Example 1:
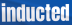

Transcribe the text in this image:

inducted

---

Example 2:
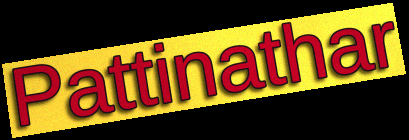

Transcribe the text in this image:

Pattinathar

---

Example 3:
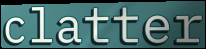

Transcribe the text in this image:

clatter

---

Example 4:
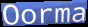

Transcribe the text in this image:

Oorma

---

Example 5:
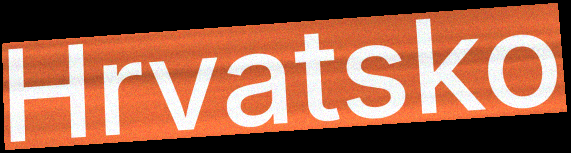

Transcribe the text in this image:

Hrvatsko